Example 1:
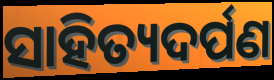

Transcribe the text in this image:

ସାହିତ୍ୟଦର୍ପଣ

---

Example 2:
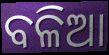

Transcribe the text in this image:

ବଳିଆ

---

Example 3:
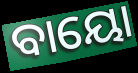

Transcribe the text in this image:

ବାୟୋ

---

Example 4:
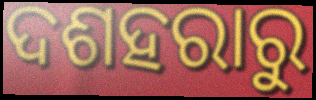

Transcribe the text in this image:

ଦଶହରାରୁ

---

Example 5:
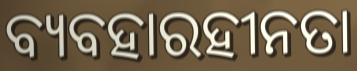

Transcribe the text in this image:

ବ୍ୟବହାରହୀନତା